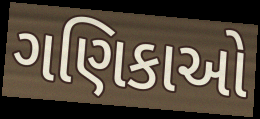
ગણિકાઓ